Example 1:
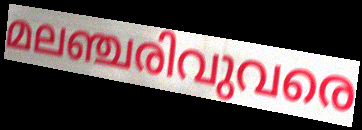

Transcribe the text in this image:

മലഞ്ചരിവുവരെ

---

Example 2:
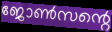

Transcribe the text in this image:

ജോൺസന്റെ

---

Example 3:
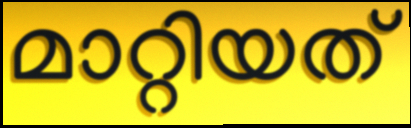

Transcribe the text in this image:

മാറ്റിയത്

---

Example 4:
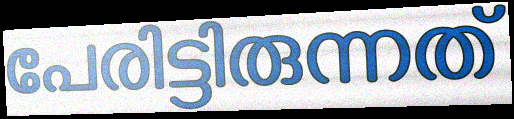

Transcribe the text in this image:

പേരിട്ടിരുന്നത്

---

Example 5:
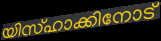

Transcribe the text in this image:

യിസ്ഹാക്കിനോട്